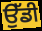
ਉੱਡੀ